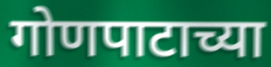
गोणपाटाच्या